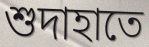
শুদাহাতে